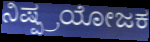
ನಿಷ್ಪ್ರಯೋಜಕ